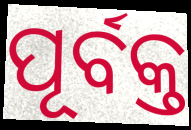
ପୂର୍ବକ୍ତ